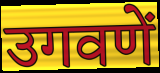
उगवणें